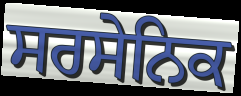
ਸਰਸੇਨਿਕ